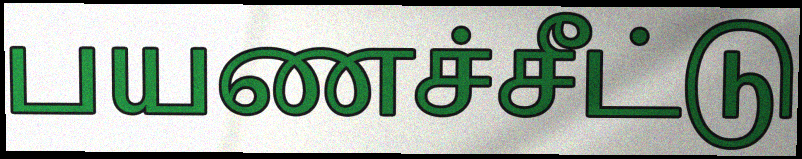
பயணச்சீட்டு